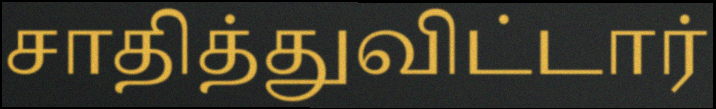
சாதித்துவிட்டார்